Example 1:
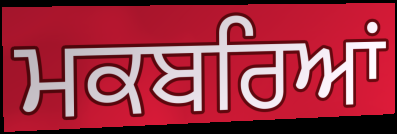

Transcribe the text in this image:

ਮਕਬਰਿਆਂ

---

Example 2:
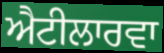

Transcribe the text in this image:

ਐਟੀਲਾਰਵਾ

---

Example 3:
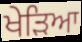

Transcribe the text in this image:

ਖੇੜਿਆ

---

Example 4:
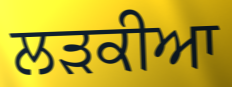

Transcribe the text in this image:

ਲੜਕੀਆ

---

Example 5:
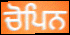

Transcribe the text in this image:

ਚੋਪਿਨ